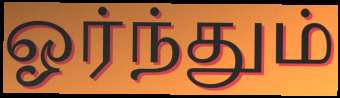
ஓர்ந்தும்